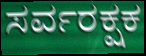
ಸರ್ವರಕ್ಷಕ